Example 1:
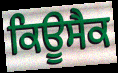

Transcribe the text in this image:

ਕਿਊਸੈਕ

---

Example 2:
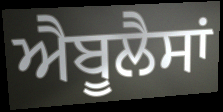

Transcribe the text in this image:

ਐਬੂਲੈਸਾਂ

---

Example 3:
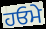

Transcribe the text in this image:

ਹਓਮੇ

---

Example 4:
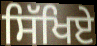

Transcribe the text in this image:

ਸਿੱਖਿਏ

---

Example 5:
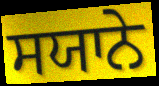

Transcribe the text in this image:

ਸਯਾਨੇ